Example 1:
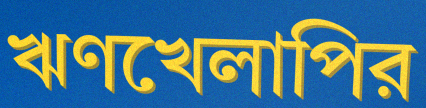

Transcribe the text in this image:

ঋণখেলাপির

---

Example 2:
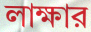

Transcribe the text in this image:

লাক্ষার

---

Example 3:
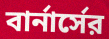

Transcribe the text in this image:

বার্নার্সের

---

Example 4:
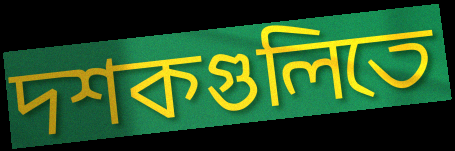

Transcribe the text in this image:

দশকগুলিতে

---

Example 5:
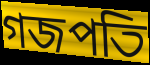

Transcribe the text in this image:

গজপতি